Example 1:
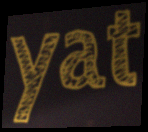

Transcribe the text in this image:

yat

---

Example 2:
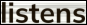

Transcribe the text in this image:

listens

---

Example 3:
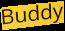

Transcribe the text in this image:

Buddy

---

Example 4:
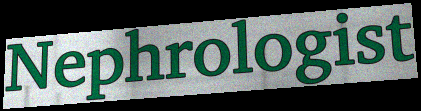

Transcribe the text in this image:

Nephrologist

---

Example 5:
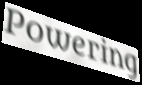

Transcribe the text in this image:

Powering